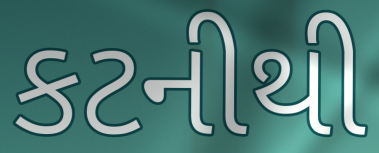
કટનીથી